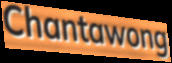
Chantawong